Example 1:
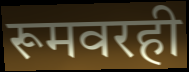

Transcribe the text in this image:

रूमवरही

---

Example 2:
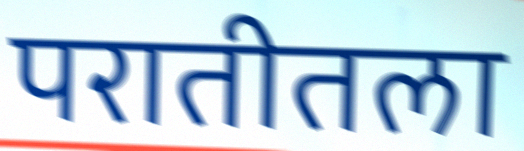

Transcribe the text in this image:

परातीतला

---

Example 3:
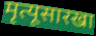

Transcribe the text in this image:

मृत्यूसारखा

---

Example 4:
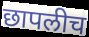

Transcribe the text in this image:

छापलीच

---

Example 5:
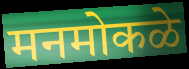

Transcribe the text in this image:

मनमोकळे